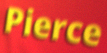
Pierce